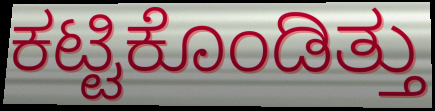
ಕಟ್ಟಿಕೊಂಡಿತ್ತು